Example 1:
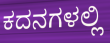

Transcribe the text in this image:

ಕದನಗಳಲ್ಲಿ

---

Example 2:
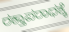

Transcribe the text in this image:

ರಕ್ತಾಪರಾಧಕ್ಕೆ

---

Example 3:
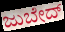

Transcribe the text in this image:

ಜುಬೇದ್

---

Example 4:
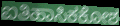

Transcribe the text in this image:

ಐತಿಹಾಸಿಕಕೋಶ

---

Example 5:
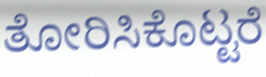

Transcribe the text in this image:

ತೋರಿಸಿಕೊಟ್ಟರೆ